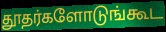
தூதர்களோடுங்கூட